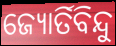
ଜ୍ୟୋର୍ତିବିନ୍ଦୁ